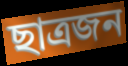
ছাত্ৰজন